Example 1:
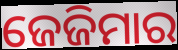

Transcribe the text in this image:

ଜେଜିମାର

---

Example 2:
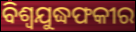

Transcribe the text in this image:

ବିଶ୍ୱଯୁଦ୍ଧଫକୀର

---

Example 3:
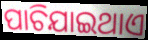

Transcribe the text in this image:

ପାଚିଯାଇଥାଏ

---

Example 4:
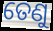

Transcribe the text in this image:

ତେଣୁ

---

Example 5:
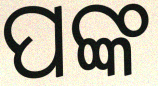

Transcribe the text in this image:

ପଙ୍କ